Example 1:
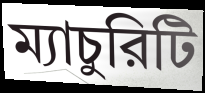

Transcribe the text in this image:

ম্যাচুরিটি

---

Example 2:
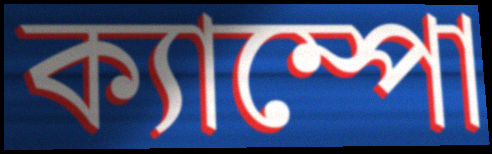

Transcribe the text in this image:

ক্যাম্পো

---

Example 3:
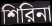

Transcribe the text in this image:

শিরিনা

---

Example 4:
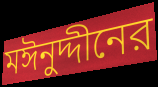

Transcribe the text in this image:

মঈনুদ্দীনের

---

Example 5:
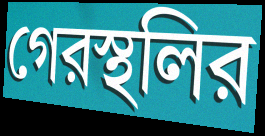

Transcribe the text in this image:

গেরস্থলির